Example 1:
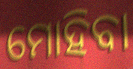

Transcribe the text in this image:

ମୋହିବା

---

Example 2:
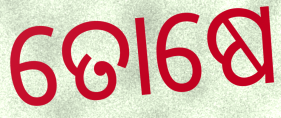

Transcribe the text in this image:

ତୋଷେ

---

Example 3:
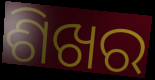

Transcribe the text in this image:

ଶିଖର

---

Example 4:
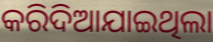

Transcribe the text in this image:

କରିଦିଆଯାଇଥିଲା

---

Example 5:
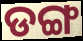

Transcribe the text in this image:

ଡଙ୍ଗ